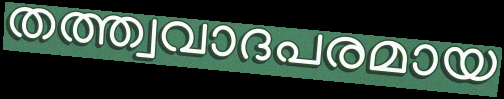
തത്ത്വവാദപരമായ